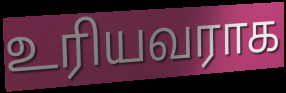
உரியவராக